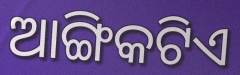
ଆଙ୍ଗିକଟିଏ